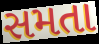
સમતા